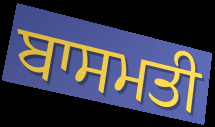
ਬਾਸਮਤੀ